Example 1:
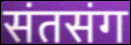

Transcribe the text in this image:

संतसंग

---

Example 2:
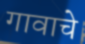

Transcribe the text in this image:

गावाचे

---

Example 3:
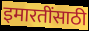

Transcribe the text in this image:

इमारतींसाठी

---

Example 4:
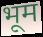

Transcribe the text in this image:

भूम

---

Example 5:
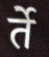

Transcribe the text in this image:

र्ते